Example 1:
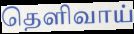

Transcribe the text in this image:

தெளிவாய்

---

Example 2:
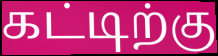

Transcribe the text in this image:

கட்டிற்கு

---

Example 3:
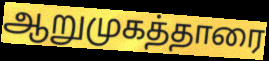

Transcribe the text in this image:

ஆறுமுகத்தாரை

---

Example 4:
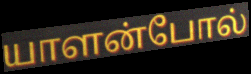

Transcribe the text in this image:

யாளன்போல்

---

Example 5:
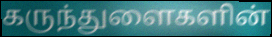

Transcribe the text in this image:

கருந்துளைகளின்